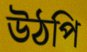
উঠপি